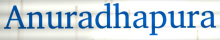
Anuradhapura